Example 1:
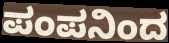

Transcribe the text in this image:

ಪಂಪನಿಂದ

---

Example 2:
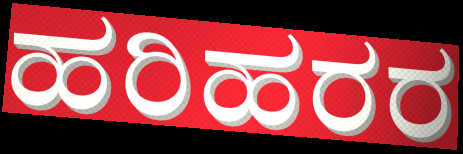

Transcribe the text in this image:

ಹರಿಹರರ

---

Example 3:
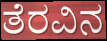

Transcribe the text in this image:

ತೆರವಿನ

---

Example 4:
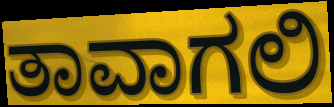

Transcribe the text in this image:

ತಾವಾಗಲಿ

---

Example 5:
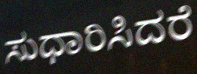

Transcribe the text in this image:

ಸುಧಾರಿಸಿದರೆ